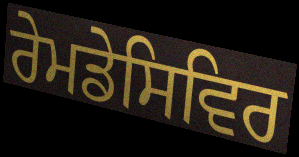
ਰੇਮਡੇਸਿਵਿਰ